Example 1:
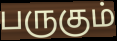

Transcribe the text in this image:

பருகும்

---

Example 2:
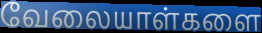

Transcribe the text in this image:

வேலையாள்களை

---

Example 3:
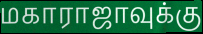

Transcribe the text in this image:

மகாராஜாவுக்கு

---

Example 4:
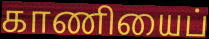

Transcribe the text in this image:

காணியைப்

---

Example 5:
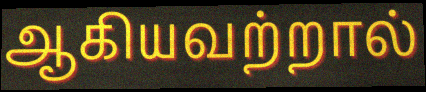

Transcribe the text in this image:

ஆகியவற்றால்